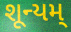
શૂન્યમ્